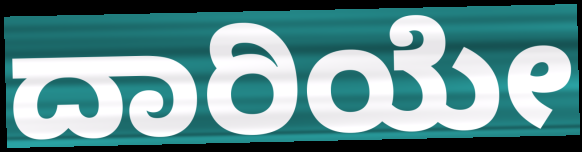
ದಾರಿಯೇ